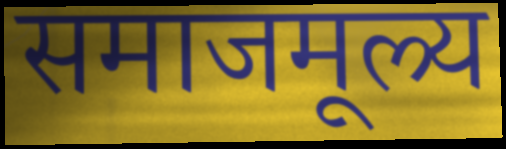
समाजमूल्य